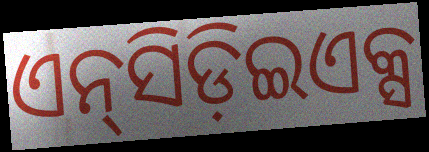
ଏନ୍‍ସିଡ଼ିଇଏକ୍ସ